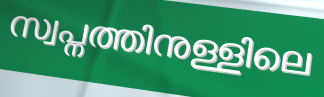
സ്വപ്നത്തിനുള്ളിലെ